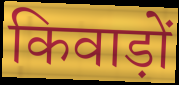
किवाड़ों